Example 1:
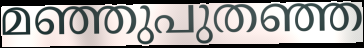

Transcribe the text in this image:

മഞ്ഞുപുതഞ്ഞ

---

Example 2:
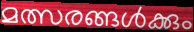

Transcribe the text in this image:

മത്സരങ്ങൾക്കും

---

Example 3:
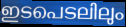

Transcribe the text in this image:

ഇടപെടലിലും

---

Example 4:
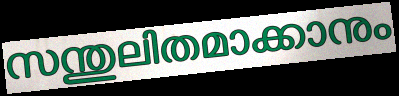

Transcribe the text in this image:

സന്തുലിതമാക്കാനും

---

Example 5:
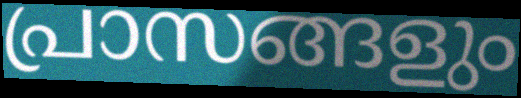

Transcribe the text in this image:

പ്രാസങ്ങളും